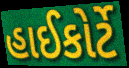
હાઈકોર્ટે